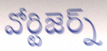
వోర్టిజెర్న్